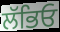
ਲੱਭਿਓ